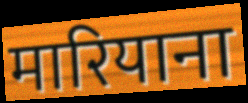
मारियाना